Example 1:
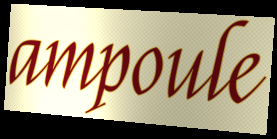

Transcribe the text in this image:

ampoule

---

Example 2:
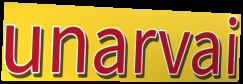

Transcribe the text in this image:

unarvai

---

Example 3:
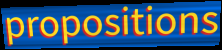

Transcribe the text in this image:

propositions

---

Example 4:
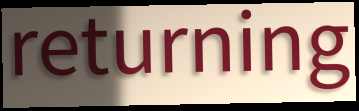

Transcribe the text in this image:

returning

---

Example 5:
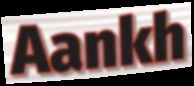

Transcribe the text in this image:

Aankh